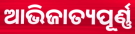
ଆଭିଜାତ୍ୟପୂର୍ଣ୍ଣ